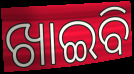
ଖାଇବି